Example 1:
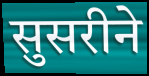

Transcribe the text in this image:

सुसरीने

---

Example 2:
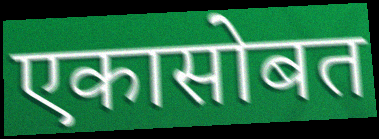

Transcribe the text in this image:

एकासोबत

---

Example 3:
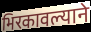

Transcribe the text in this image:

भिरकावल्याने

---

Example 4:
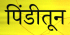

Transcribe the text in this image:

पिंडीतून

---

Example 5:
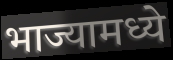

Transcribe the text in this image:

भाज्यामध्ये